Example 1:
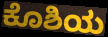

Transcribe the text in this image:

ಕೊಶಿಯ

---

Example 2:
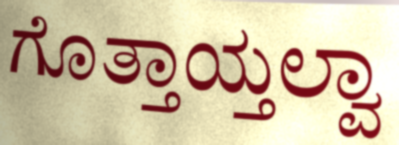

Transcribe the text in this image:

ಗೊತ್ತಾಯ್ತಲ್ವಾ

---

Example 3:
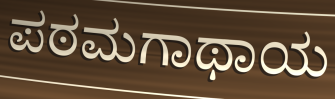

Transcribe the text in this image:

ಪಠಮಗಾಥಾಯ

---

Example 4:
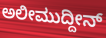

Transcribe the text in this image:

ಅಲೀಮುದ್ದೀನ್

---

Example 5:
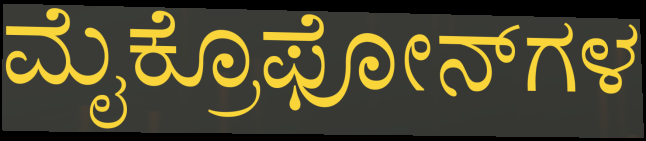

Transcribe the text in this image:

ಮೈಕ್ರೊಫೋನ್‌ಗಳ